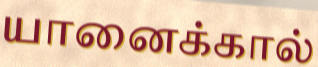
யானைக்கால்